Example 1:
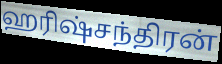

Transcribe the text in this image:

ஹரிஷ்சந்திரன்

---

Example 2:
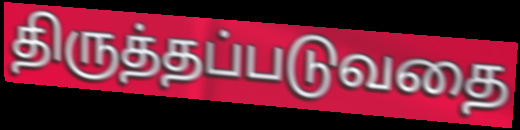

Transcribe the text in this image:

திருத்தப்படுவதை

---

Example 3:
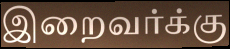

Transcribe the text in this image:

இறைவர்க்கு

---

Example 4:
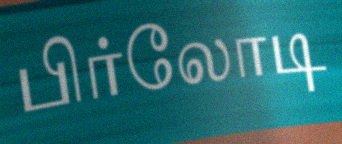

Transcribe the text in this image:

பிர்லோடி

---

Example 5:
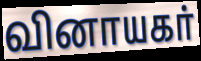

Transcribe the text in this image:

வினாயகர்